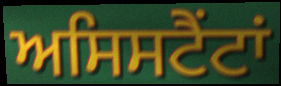
ਅਸਿਸਟੈਂਟਾਂ